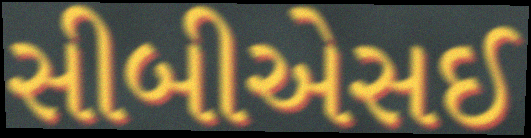
સીબીએસઈ